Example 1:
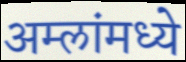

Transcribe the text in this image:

अम्लांमध्ये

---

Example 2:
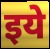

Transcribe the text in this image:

इये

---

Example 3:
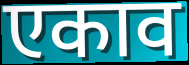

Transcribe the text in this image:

एकाव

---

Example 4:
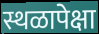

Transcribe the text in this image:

स्थळापेक्षा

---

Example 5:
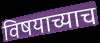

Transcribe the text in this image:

विषयाच्याच